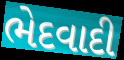
ભેદવાદી